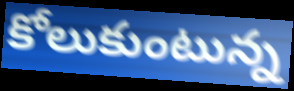
కోలుకుంటున్న